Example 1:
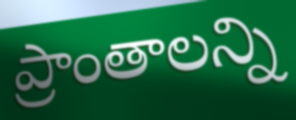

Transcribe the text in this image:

ప్రాంతాలన్ని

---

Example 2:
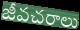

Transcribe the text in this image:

జీవచరాలు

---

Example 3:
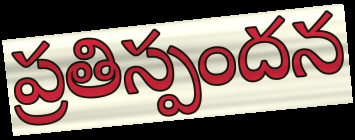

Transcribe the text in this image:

ప్రతిస్పందన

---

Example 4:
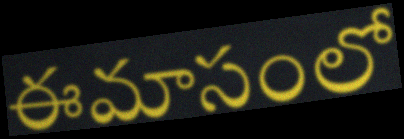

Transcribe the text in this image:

ఈమాసంలో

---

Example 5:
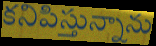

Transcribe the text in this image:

కనిపిస్తున్నాను